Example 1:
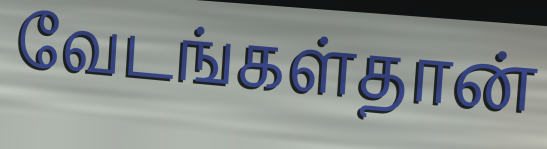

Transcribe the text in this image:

வேடங்கள்தான்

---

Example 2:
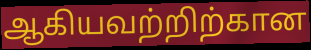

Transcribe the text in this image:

ஆகியவற்றிற்கான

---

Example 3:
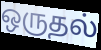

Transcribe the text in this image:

ஒருதல்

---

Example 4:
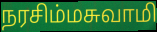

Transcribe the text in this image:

நரசிம்மசுவாமி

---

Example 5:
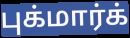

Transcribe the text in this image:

புக்மார்க்